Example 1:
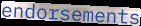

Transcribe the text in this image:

endorsements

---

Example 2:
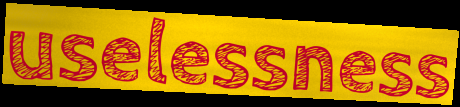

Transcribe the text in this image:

uselessness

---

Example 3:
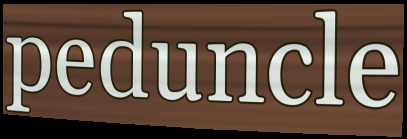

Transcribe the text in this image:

peduncle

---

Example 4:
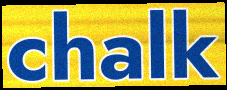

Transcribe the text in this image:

chalk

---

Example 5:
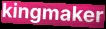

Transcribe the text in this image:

kingmaker